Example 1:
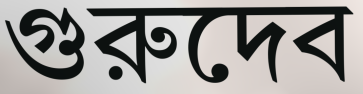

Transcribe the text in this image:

গুরুদেব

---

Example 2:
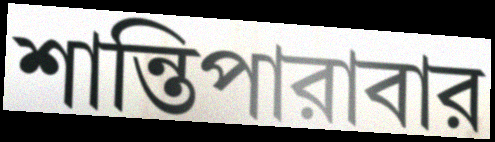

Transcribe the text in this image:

শান্তিপারাবার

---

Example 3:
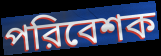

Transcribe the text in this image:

পরিবেশক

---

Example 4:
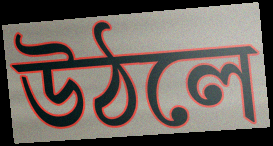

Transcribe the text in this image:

উঠলে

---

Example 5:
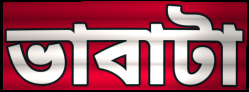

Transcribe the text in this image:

ভাবাটা